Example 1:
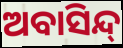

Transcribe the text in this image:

ଅବାସିନ୍ଦ୍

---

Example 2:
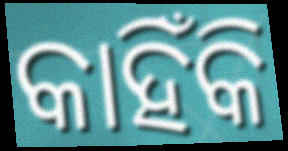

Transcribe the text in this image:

କାହିଁକି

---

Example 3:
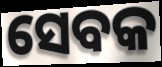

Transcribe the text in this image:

ସେବକ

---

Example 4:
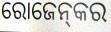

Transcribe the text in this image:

ରୋଜେନ୍‌କର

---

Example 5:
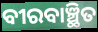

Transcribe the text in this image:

ବୀରବାଞ୍ଛିତ